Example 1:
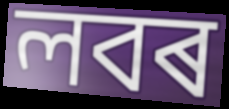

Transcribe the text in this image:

লবৰ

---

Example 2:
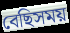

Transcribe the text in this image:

বেছিসময়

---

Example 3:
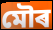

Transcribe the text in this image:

মৌৰ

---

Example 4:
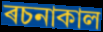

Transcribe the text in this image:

ৰচনাকাল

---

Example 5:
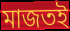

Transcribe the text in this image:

মাজতই